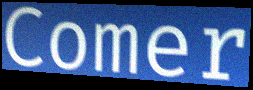
Comer